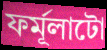
ফৰ্মূলাটো